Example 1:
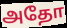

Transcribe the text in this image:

அதோ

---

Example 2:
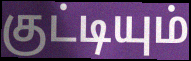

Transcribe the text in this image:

குட்டியும்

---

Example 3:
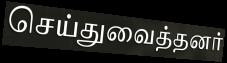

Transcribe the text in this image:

செய்துவைத்தனர்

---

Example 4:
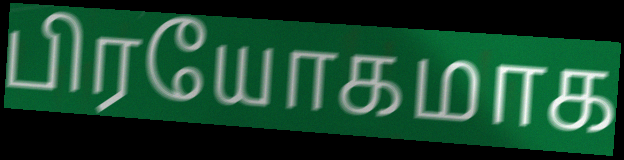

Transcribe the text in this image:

பிரயோகமாக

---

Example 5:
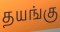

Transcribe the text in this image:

தயங்கு